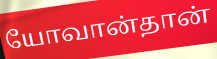
யோவான்தான்